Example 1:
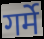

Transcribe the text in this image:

गर्मे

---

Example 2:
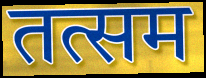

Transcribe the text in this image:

तत्सम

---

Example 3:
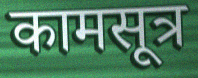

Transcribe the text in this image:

कामसूत्र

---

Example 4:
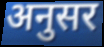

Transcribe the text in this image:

अनुसर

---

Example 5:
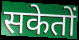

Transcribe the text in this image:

सकेतों